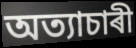
অত্যাচাৰী